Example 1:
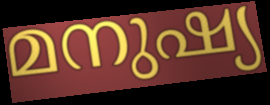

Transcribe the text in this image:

മനുഷ്യ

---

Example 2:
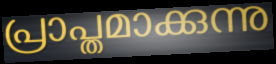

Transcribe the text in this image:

പ്രാപ്തമാക്കുന്നു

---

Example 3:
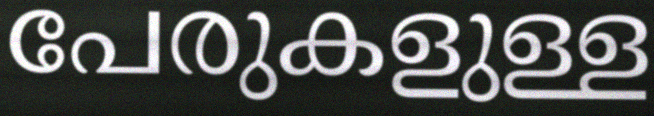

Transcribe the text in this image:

പേരുകളുള്ള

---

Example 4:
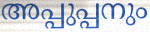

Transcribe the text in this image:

അപ്പുപ്പനും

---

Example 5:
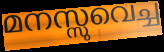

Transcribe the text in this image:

മനസ്സുവെച്ച